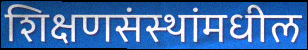
शिक्षणसंस्थांमधील